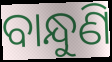
ବାନ୍ଧୁଣି